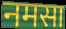
नमसा